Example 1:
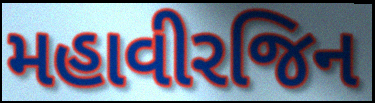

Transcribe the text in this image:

મહાવીરજિન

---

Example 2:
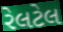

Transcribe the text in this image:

રેલટેલ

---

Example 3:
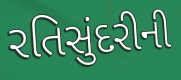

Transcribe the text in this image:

રતિસુંદરીની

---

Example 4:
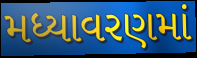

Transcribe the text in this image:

મધ્યાવરણમાં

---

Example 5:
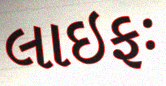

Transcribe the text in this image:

લાઇફઃ